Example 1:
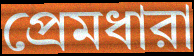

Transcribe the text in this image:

প্রেমধারা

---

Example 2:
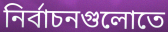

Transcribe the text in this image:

নির্বাচনগুলোতে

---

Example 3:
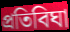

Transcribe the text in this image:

প্রতিবিঘা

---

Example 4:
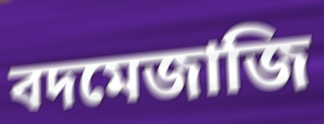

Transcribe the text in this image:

বদমেজাজি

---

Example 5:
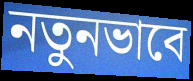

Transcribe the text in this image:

নতুনভাবে